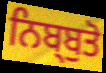
ਨਿਬ੍ਬੁਤੋ